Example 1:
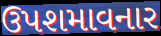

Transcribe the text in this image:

ઉપશમાવનાર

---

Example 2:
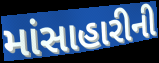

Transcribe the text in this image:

માંસાહારીની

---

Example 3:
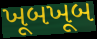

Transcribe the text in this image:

ખૂબખૂબ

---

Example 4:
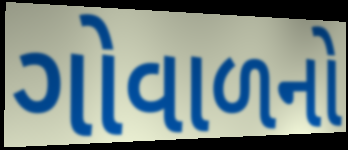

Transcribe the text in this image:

ગોવાળનો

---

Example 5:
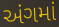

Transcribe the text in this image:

અંગમાં